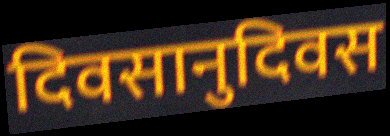
दिवसानुदिवस